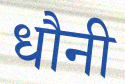
धौनी